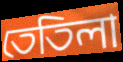
তেতিলা